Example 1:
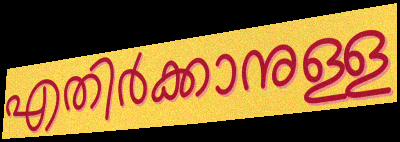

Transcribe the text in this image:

എതിർക്കാനുള്ള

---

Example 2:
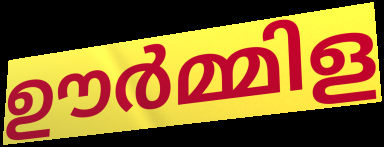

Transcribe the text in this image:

ഊർമ്മിള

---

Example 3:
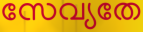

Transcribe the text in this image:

സേവ്യതേ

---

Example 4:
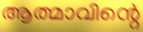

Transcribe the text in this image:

ആത്മാവിന്റെ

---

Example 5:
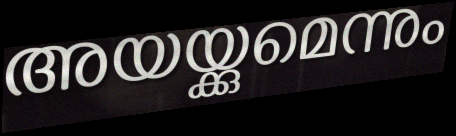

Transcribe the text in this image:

അയയ്ക്കുമെന്നും